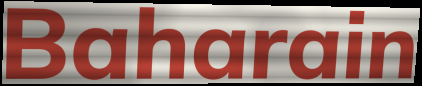
Baharain